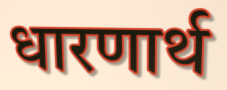
धारणार्थ